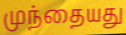
முந்தையது